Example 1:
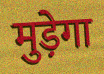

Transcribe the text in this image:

मुड़ेगा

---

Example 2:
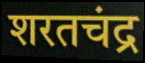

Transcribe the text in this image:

शरतचंद्र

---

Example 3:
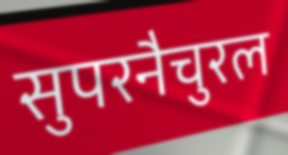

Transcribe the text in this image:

सुपरनैचुरल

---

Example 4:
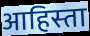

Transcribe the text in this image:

आहिस्ता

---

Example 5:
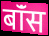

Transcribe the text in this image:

बॉंस